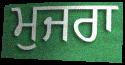
ਮੁਜਰਾ